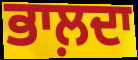
ਭਾਲ਼ਦਾ